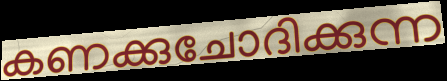
കണക്കുചോദിക്കുന്ന